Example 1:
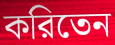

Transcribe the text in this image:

করিতেন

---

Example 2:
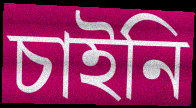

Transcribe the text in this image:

চাইনি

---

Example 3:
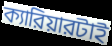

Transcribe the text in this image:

ক্যারিয়ারটাই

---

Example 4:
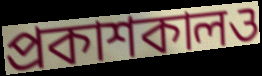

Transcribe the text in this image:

প্রকাশকালও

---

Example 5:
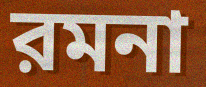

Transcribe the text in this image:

রমনা